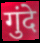
गुंदे